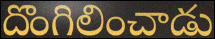
దొంగిలించాడు